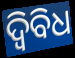
ଦ୍ଵିବିଧ